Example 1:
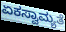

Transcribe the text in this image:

ಏಕಸ್ವಾಮ್ಯತೆ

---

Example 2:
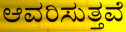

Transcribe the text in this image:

ಆವರಿಸುತ್ತವೆ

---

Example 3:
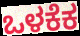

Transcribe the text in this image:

ಒಳಕೆಕ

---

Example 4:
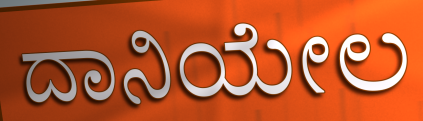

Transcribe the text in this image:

ದಾನಿಯೇಲ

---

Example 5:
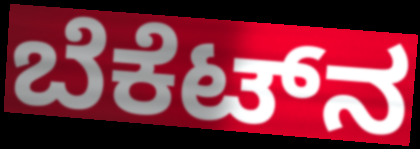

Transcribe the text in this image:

ಬೆಕೆಟ್‌ನ